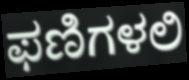
ಫಣಿಗಳಲಿ